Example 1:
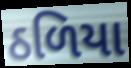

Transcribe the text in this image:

ઠળિયા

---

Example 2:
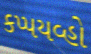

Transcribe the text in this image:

કપ્પયવ્હો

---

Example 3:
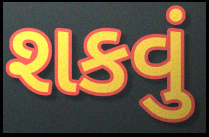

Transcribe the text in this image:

શકવું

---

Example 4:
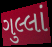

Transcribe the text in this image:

ગુલ્લાં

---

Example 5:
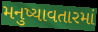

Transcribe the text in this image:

મનુષ્યાવતારમાં